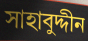
সাহাবুদ্দীন